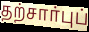
தற்சார்புப்